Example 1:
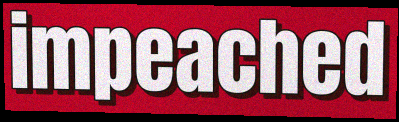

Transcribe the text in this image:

impeached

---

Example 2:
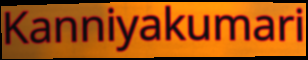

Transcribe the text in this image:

Kanniyakumari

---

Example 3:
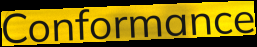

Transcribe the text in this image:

Conformance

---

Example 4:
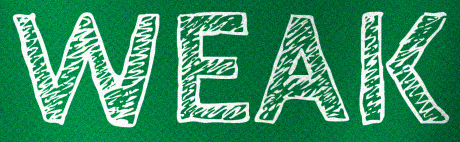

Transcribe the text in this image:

WEAK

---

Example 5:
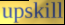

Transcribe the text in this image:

upskill